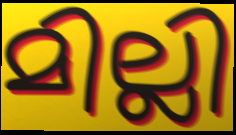
മില്ലി